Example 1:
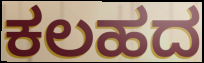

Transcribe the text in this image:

ಕಲಹದ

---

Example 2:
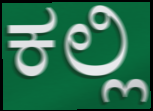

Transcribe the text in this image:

ಕಲ್ಲಿ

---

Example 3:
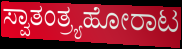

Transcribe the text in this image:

ಸ್ವಾತಂತ್ರ್ಯಹೋರಾಟ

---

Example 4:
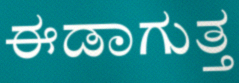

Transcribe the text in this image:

ಈಡಾಗುತ್ತ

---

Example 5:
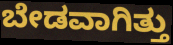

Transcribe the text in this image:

ಬೇಡವಾಗಿತ್ತು